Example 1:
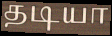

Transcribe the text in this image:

தடியா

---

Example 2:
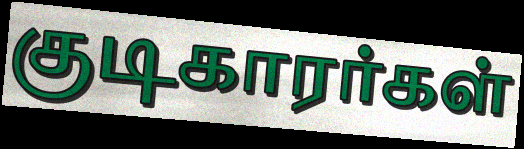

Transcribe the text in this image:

குடிகாரர்கள்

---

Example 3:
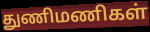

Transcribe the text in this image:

துணிமணிகள்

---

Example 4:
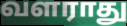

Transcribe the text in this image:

வளராது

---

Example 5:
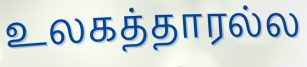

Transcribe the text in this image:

உலகத்தாரல்ல